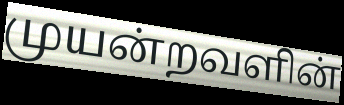
முயன்றவளின்